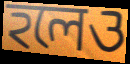
হলেও